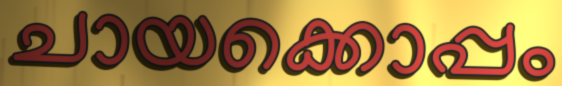
ചായക്കൊപ്പം